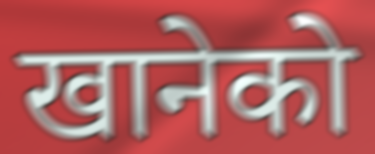
खानेको